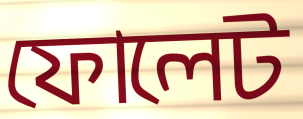
ফোলেট